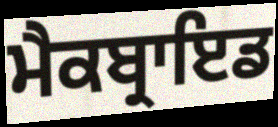
ਮੈਕਬ੍ਰਾਇਡ